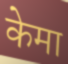
केमा